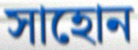
সাহোন